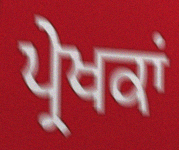
ਪ੍ਰੇਖਕਾਂ